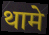
थामे